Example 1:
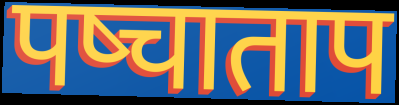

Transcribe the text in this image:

पष्चाताप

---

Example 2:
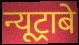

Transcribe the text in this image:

न्यूट्राबे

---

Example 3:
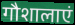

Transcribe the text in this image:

गौशालाएं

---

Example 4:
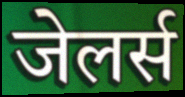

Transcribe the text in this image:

जेलर्स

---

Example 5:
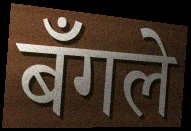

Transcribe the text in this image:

बँगले